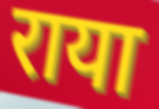
राया